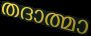
തദാത്മാ